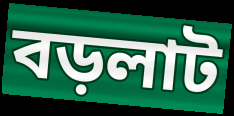
বড়লাট